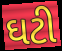
ઘટી